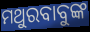
ମଥୁରବାବୁଙ୍କ